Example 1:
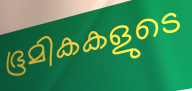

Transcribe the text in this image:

ഭൂമികകളുടെ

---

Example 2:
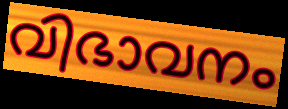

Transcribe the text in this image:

വിഭാവനം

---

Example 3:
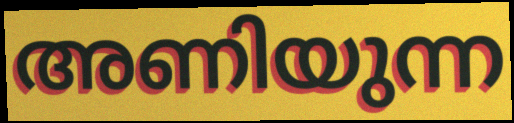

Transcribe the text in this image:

അണിയുന്ന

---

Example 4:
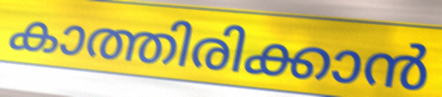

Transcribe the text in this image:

കാത്തിരിക്കാൻ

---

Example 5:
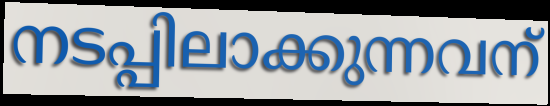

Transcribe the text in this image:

നടപ്പിലാക്കുന്നവന്